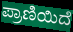
ಪ್ರಾಣಿಯಿದೆ